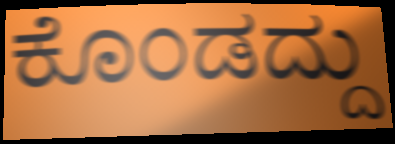
ಕೊಂಡದ್ದು